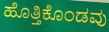
ಹೊತ್ತಿಕೊಂಡವು